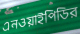
এনওয়াইপিডির